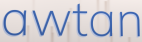
awtan